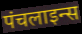
पंचलाइन्स